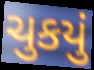
ચુકયું